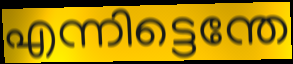
എന്നിട്ടെന്തേ